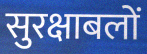
सुरक्षाबलों